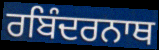
ਰਬਿੰਦਰਨਾਥ